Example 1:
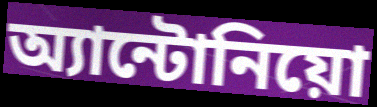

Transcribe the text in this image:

অ্যান্টোনিয়ো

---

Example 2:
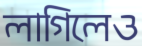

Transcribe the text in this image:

লাগিলেও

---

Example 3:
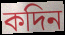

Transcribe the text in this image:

কদিন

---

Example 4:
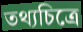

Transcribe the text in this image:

তথ্যচিত্রে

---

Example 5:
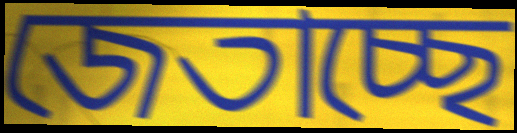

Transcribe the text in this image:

জেতাচ্ছে